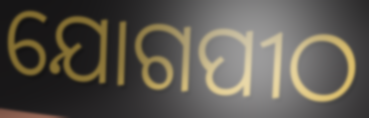
ଯୋଗପୀଠ